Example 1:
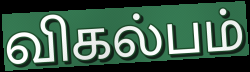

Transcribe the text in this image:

விகல்பம்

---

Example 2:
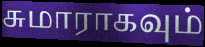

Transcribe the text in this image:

சுமாராகவும்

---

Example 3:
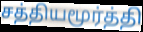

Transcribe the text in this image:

சத்தியமூர்த்தி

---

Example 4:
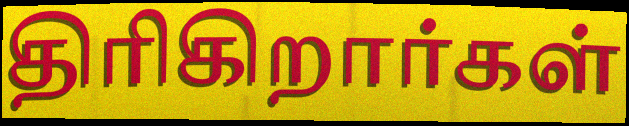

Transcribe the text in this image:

திரிகிறார்கள்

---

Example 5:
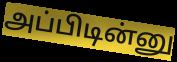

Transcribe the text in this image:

அப்பிடின்னு